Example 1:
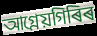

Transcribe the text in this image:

আগ্নেয়গিৰিৰ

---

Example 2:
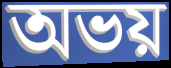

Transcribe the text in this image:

অভয়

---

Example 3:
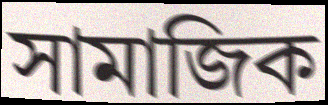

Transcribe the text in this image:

সামাজিক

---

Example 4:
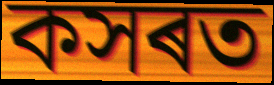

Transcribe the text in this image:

কসৰত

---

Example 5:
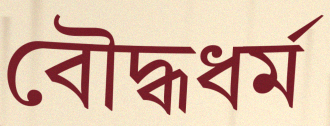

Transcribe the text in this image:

বৌদ্ধধৰ্ম